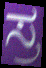
ಸ್ರ